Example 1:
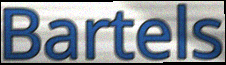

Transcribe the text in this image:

Bartels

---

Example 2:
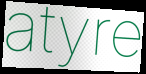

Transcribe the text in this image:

atyre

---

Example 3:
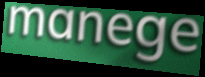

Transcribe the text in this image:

manege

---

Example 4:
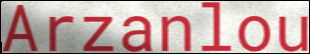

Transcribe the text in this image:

Arzanlou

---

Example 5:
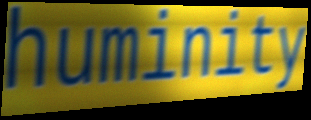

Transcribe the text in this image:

huminity